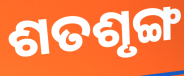
ଶତଶୃଙ୍ଗ